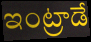
ఇంట్రాడే